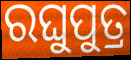
ରଘୁପୁତ୍ର